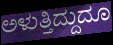
ಅಳುತ್ತಿದ್ದುದೂ